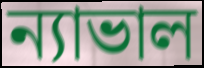
ন্যাভাল